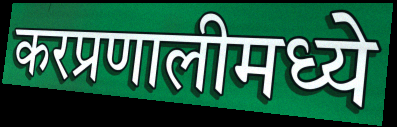
करप्रणालीमध्ये